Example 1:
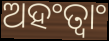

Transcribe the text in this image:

ଅହଂତ୍ୱାଂ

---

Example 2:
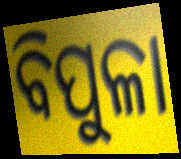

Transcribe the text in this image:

ବିପୁଳା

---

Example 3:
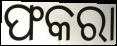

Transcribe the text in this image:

ଫକରା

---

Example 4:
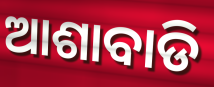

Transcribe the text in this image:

ଆଶାବାଡି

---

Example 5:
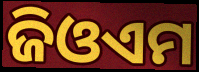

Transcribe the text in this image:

ଜିଓଏମ